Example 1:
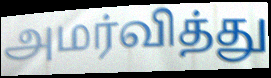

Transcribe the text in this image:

அமர்வித்து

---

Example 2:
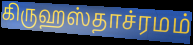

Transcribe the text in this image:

கிருஹஸ்தாச்ரமம்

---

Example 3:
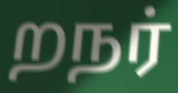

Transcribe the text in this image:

றநர்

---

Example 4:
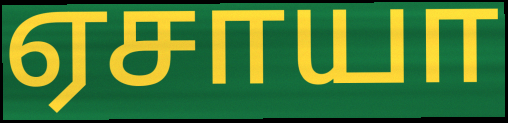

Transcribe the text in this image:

ஏசாயா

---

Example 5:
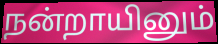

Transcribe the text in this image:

நன்றாயினும்